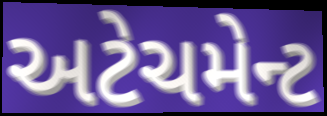
અટેચમેન્ટ